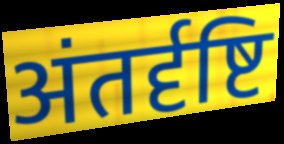
अंतर्दृष्टि